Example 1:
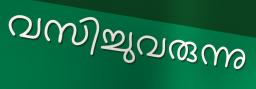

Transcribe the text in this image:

വസിച്ചുവരുന്നു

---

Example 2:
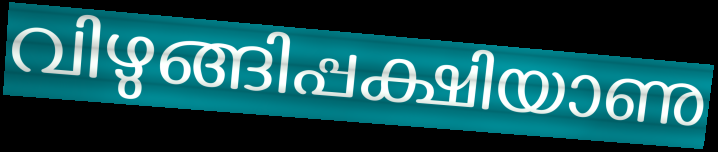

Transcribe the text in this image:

വിഴുങ്ങിപ്പക്ഷിയാണു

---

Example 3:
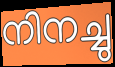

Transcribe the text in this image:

നിനച്ചു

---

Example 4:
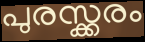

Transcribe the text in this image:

പുരസ്ക്കരം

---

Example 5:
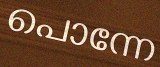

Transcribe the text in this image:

പൊന്നേ